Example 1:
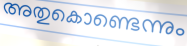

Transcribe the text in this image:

അതുകൊണ്ടെന്നും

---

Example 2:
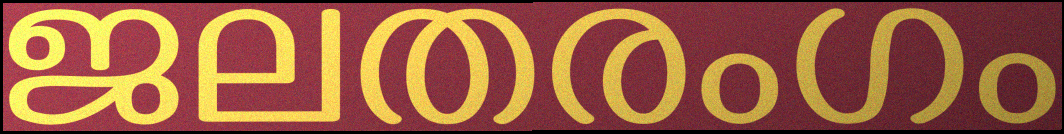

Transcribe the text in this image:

ജലതരംഗം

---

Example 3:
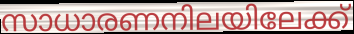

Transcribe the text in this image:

സാധാരണനിലയിലേക്ക്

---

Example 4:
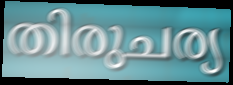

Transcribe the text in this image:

തിരുചര്യ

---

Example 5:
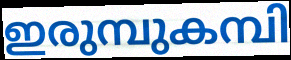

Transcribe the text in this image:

ഇരുമ്പുകമ്പി